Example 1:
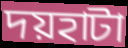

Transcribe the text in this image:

দয়হাটা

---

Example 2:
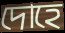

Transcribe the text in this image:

দোহে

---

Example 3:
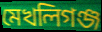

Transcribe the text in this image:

মেখলিগঞ্জ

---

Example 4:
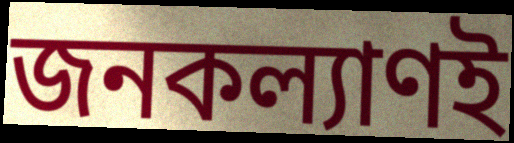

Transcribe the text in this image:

জনকল্যাণই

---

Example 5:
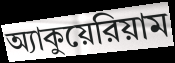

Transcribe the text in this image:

অ্যাকুয়েরিয়াম